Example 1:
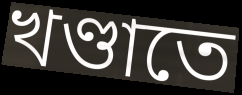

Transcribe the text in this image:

খণ্ডাতে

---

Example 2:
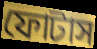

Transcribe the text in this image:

ফোটাস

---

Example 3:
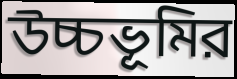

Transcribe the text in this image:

উচ্চভূমির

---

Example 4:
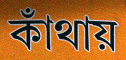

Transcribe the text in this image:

কাঁথায়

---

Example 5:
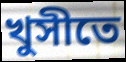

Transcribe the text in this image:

খুসীতে